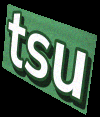
tsu